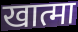
खात्मा